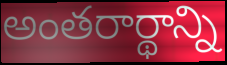
అంతరార్థాన్ని